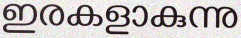
ഇരകളാകുന്നു